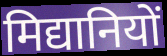
मिद्यानियों